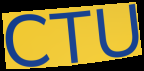
CTU